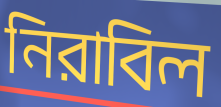
নিরাবিল